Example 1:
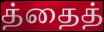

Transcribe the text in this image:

த்தைத்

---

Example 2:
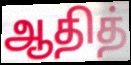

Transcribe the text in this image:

ஆதித்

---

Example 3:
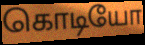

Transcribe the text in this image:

கொடியோ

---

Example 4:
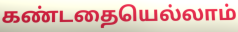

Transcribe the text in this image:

கண்டதையெல்லாம்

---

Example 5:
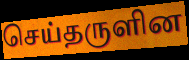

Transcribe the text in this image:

செய்தருளின